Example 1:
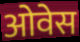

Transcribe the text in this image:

ओवेस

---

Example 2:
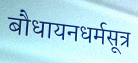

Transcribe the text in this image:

बौधायनधर्मसूत्र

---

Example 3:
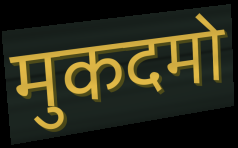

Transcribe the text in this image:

मुकदमो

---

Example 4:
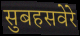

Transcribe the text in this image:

सुबहसवेरे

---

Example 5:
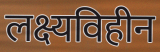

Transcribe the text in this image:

लक्ष्यविहीन